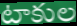
టాకుల